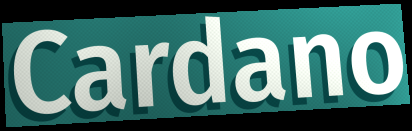
Cardano